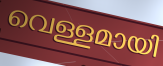
വെള്ളമായി